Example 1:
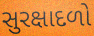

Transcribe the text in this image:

સુરક્ષાદળો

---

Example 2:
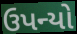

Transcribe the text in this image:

ઉપન્યો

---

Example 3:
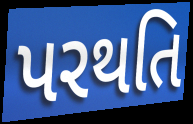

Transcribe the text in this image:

પરથતિ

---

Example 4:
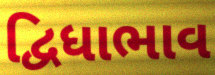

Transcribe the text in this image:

દ્વિધાભાવ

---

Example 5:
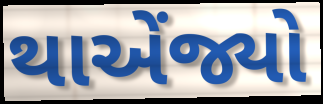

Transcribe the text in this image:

થાએંજ્યો